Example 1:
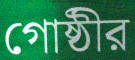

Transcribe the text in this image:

গোষ্ঠীর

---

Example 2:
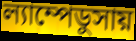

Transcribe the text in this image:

ল্যাম্পেডুসায়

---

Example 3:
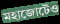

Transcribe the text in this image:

মহাজোটেও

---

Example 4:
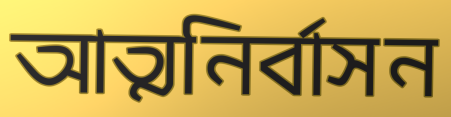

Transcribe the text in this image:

আত্মনির্বাসন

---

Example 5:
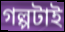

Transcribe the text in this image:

গল্পটাই